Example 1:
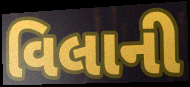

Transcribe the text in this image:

વિલાની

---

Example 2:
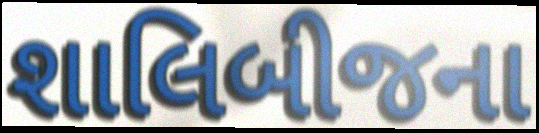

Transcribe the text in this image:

શાલિબીજના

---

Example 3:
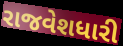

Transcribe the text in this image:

રાજવેશધારી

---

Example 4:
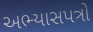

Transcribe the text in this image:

અભ્યાસપત્રો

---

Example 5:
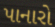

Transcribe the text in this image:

પાનારો